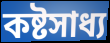
কষ্টসাধ্য